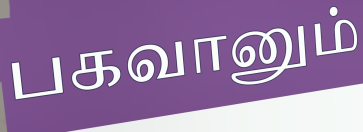
பகவானும்